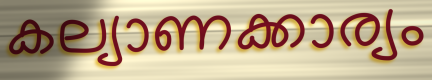
കല്യാണക്കാര്യം